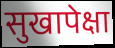
सुखापेक्षा